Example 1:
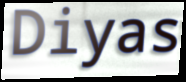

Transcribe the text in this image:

Diyas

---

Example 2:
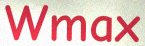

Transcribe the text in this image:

Wmax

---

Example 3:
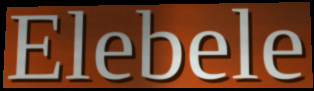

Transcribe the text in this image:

Elebele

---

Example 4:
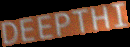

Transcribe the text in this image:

DEEPTHI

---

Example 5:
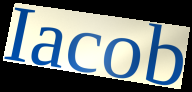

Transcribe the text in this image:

Iacob